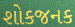
શોકજનક